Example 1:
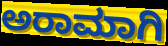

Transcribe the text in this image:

ಅರಾಮಾಗಿ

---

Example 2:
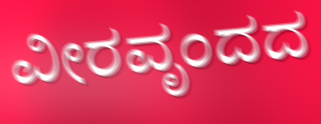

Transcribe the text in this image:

ವೀರವೃಂದದ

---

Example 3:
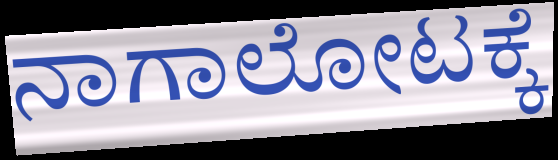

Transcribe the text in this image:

ನಾಗಾಲೋಟಕ್ಕೆ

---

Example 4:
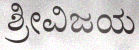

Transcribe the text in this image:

ಶ್ರೀವಿಜಯ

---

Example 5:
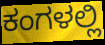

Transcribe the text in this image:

ಕಂಗಳಲ್ಲಿ